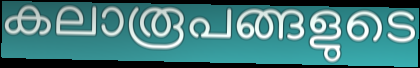
കലാരൂപങ്ങളുടെ